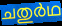
ചതുർഥ